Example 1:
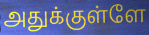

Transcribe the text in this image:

அதுக்குள்ளே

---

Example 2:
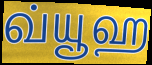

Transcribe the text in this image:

வ்யூஹ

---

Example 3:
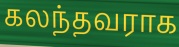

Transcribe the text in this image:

கலந்தவராக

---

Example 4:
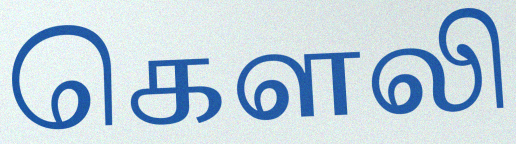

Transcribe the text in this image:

கௌலி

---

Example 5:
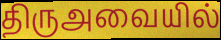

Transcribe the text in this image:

திருஅவையில்